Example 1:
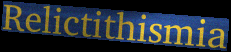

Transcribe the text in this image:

Relictithismia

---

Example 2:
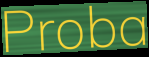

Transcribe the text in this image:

Proba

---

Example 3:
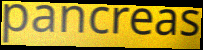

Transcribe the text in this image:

pancreas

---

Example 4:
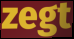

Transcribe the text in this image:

zegt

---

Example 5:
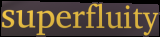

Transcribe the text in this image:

superfluity